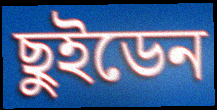
ছুইডেন